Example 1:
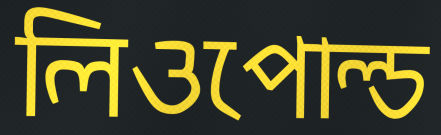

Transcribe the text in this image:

লিওপোল্ড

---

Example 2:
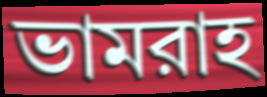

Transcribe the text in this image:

ভামরাহ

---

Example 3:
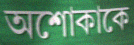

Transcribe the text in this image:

অশোকাকে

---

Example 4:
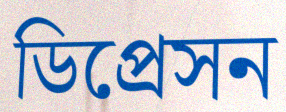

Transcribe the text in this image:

ডিপ্রেসন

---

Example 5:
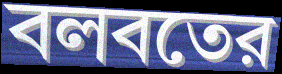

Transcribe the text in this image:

বলবতের